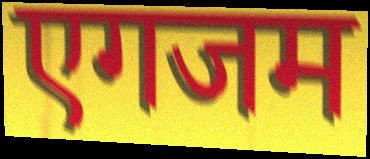
एगजम